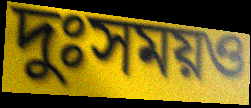
দুঃসময়ও